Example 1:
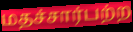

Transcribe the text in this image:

மதச்சார்பற்ற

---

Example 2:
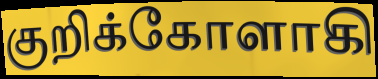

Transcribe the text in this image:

குறிக்கோளாகி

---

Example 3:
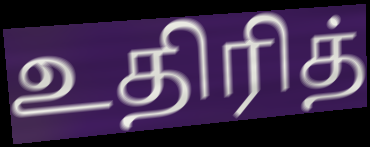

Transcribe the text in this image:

உதிரித்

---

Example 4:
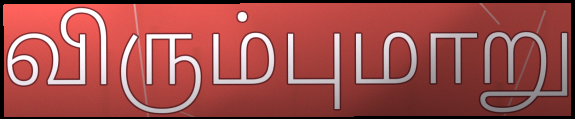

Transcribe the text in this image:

விரும்புமாறு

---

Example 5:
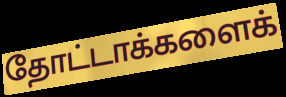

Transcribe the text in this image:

தோட்டாக்களைக்